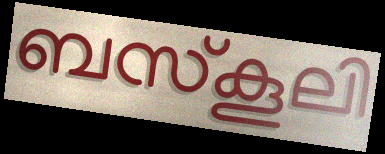
ബസ്കൂലി